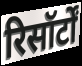
रिसॉर्टों